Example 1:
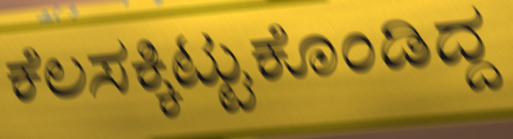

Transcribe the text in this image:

ಕೆಲಸಕ್ಕಿಟ್ಟುಕೊಂಡಿದ್ದ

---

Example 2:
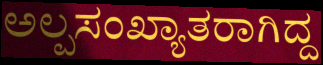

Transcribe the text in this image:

ಅಲ್ಪಸಂಖ್ಯಾತರಾಗಿದ್ದ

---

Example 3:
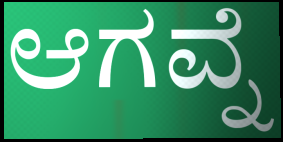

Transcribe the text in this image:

ಆಗವ್ನೆ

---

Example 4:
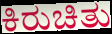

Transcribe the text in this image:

ಕಿರುಚಿತು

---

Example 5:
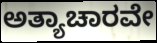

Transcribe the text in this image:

ಅತ್ಯಾಚಾರವೇ